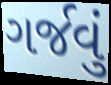
ગર્જવું